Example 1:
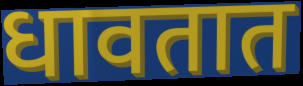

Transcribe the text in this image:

धावतात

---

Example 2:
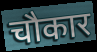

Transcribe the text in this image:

चौकार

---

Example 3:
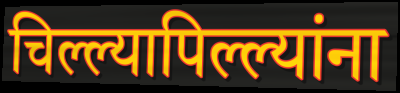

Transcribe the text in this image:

चिल्ल्यापिल्ल्यांना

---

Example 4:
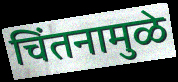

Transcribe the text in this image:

चिंतनामुळे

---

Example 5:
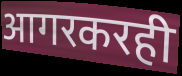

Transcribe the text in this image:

आगरकरही